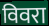
विवरा